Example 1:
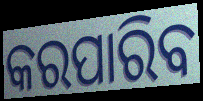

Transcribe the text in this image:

କରପାରିବ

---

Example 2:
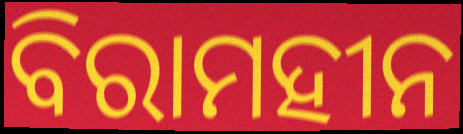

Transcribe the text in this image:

ବିରାମହୀନ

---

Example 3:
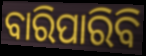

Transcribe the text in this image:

ବାରିପାରିବି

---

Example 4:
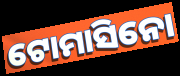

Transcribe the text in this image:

ଟୋମାସିନୋ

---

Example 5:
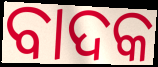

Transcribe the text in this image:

ବାଦକ